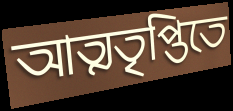
আত্মতৃপ্তিতে